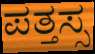
ಪತ್ತಸ್ಸ